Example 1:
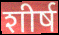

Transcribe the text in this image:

शीर्ष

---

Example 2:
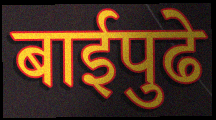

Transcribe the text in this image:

बाईपुढे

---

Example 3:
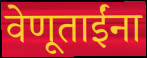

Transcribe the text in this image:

वेणूताईंना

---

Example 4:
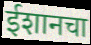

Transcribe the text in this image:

ईशानचा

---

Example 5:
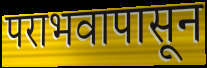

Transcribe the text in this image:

पराभवापासून